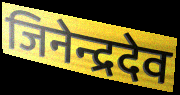
जिनेन्द्रदेव